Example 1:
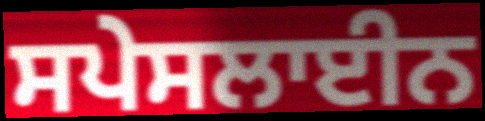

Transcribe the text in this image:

ਸਪੇਸਲਾਈਨ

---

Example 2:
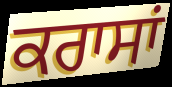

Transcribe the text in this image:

ਕਰਾਸਾਂ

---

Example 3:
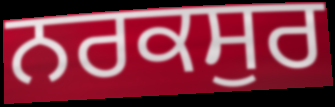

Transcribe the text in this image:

ਨਰਕਸੁਰ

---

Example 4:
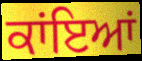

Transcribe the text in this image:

ਕਾਂਇਆਂ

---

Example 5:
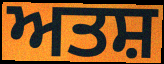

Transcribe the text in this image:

ਅਤਸ਼